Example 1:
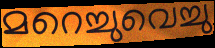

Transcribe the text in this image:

മറെച്ചുവെച്ചു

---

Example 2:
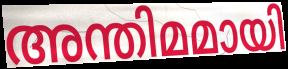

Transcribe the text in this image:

അന്തിമമായി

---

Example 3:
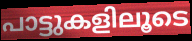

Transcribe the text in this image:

പാട്ടുകളിലൂടെ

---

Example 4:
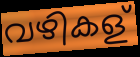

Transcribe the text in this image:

വഴികള്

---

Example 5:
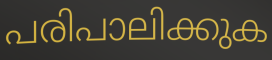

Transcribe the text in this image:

പരിപാലിക്കുക